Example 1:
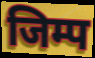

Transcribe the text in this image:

जिम्प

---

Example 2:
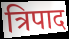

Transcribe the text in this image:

त्रिपाद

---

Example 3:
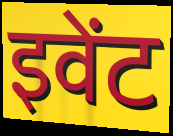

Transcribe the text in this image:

इवेंट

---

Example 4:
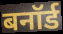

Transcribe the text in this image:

बनॉर्ड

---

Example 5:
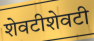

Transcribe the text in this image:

शेवटीशेवटी